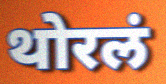
थोरलं